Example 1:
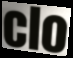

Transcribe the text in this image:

clo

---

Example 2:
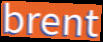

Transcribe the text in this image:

brent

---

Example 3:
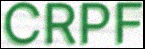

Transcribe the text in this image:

CRPF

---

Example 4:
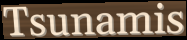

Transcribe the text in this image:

Tsunamis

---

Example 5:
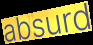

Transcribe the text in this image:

absurd